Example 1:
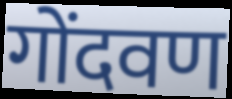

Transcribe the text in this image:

गोंदवण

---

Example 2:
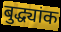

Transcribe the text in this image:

बुद्ध्यांक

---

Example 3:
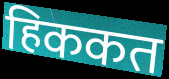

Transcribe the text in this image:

हिककत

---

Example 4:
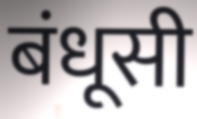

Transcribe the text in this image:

बंधूसी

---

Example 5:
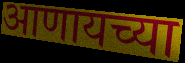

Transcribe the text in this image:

आणायच्या